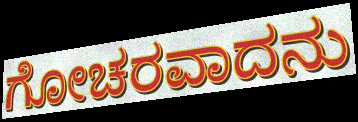
ಗೋಚರವಾದನು